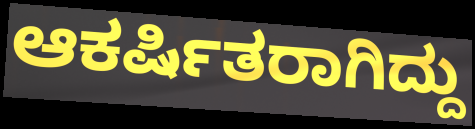
ಆಕರ್ಷಿತರಾಗಿದ್ದು